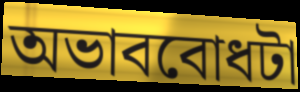
অভাববোধটা